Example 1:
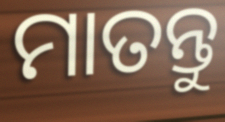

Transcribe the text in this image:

ମାତନ୍ତୁ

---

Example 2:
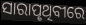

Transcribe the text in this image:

ସାରାପୃଥିବୀରେ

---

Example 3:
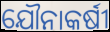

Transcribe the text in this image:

ଯୌନାକର୍ଷୀ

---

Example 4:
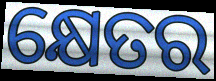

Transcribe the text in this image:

କ୍ଷେତର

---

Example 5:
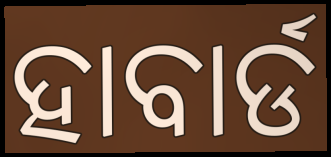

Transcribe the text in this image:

ହାବାର୍ଡ